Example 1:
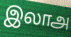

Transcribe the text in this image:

இலாஅ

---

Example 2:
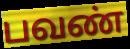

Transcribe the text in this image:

பவண்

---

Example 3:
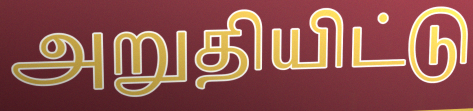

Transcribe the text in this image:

அறுதியிட்டு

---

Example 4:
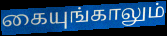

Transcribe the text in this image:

கையுங்காலும்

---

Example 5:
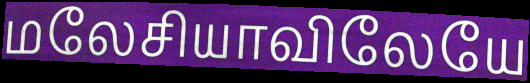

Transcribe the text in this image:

மலேசியாவிலேயே